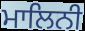
ਮਾਲਿਨੀ